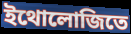
ইথোলোজিতে